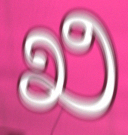
ಖಿ